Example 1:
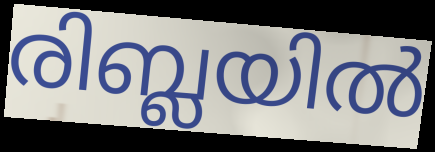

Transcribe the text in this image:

രിബ്ലയിൽ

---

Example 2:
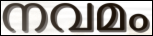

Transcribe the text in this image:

നവമം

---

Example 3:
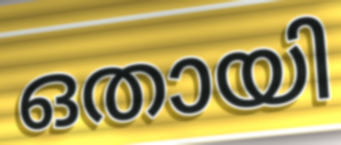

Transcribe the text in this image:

ഒതായി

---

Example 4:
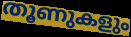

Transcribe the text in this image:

തൂണുകളും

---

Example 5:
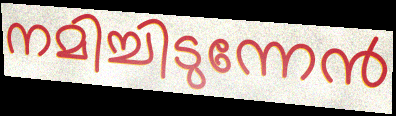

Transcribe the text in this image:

നമിച്ചിടുന്നേൻ